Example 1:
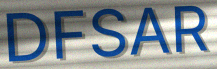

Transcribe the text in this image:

DFSAR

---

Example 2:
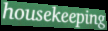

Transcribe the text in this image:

housekeeping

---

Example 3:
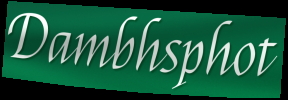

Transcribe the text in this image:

Dambhsphot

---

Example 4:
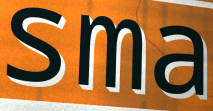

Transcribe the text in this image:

sma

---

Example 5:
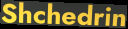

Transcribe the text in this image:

Shchedrin